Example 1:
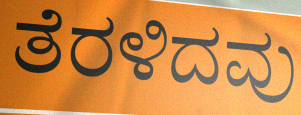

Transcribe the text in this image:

ತೆರಳಿದವು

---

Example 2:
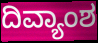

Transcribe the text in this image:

ದಿವ್ಯಾಂಶ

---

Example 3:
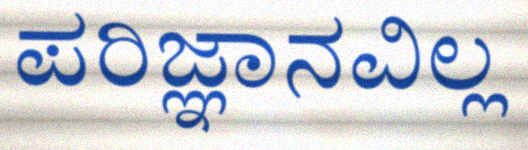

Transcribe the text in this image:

ಪರಿಜ್ಞಾನವಿಲ್ಲ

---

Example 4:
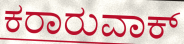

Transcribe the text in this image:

ಕರಾರುವಾಕ್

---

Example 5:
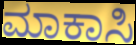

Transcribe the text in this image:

ಮಾಕಾಸಿ